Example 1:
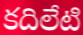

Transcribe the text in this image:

కదిలేటి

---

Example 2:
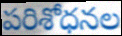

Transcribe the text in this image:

పరిశోధనల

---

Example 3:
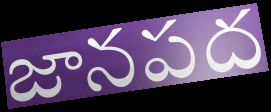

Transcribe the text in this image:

జానపద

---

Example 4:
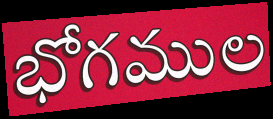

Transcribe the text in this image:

భోగముల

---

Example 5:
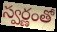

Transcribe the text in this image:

స్వర్ణంతో